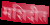
मशिदीत